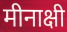
मीनाक्षी